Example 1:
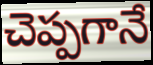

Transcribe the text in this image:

చెప్పగానే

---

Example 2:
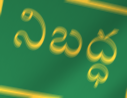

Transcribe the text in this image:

నిబద్ధ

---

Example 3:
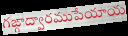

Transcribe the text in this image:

గఙ్గాద్వారముపేయాయ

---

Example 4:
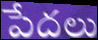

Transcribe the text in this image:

పేదలు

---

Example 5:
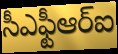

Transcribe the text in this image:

సీఎఫ్టీఆర్ఐ